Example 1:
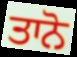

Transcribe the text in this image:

ਤਾਨੋ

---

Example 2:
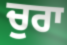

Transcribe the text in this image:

ਚੁਰਾ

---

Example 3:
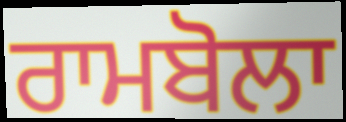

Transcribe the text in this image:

ਰਾਮਬੋਲਾ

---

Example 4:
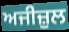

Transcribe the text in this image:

ਅਜੀਜ਼ੁਲ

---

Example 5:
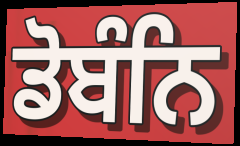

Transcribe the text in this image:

ਡੋਬੰਨਿ